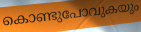
കൊണ്ടുപോവുകയും